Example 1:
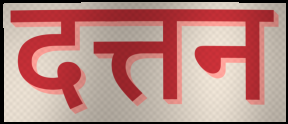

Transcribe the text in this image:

दत्तन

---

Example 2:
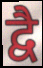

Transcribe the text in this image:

द्वै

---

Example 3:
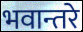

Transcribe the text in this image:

भवान्तरे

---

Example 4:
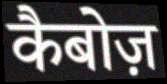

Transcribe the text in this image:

कैबोज़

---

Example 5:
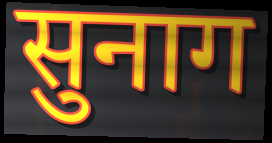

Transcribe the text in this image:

सुनाग